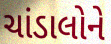
ચાંડાલોને